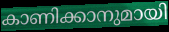
കാണിക്കാനുമായി